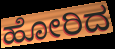
ಹೋರಿದ